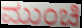
ಮುಂಚಿ